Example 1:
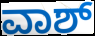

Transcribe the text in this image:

ವಾಶ್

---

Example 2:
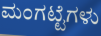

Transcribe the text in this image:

ಮಂಗಟ್ಟೆಗಳು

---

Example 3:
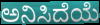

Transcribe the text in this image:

ಅನಿಸಿದೆಯೆ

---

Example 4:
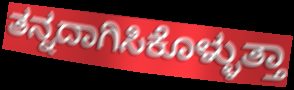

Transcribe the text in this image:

ತನ್ನದಾಗಿಸಿಕೊಳ್ಳುತ್ತಾ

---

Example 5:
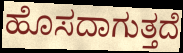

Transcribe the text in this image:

ಹೊಸದಾಗುತ್ತದೆ